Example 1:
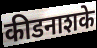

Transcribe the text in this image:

कीडनाशके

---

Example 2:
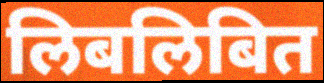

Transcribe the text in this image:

लिबलिबित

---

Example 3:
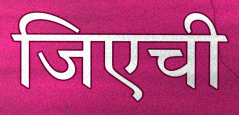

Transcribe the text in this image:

जिएची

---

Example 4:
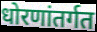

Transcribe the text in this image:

धोरणांतर्गत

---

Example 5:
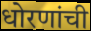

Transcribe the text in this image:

धोरणांची